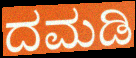
ದಮಡಿ